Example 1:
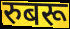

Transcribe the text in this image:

रुबरू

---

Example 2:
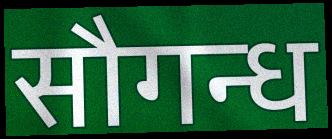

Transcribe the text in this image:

सौगन्ध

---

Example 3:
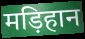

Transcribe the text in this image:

मड़िहान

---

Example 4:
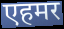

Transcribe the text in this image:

एहमर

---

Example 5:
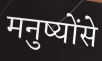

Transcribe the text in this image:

मनुष्योंसे